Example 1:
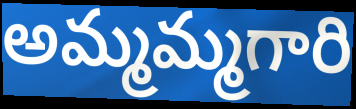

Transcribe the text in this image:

అమ్మమ్మగారి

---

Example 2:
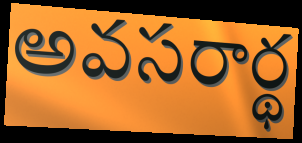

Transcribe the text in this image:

అవసరార్థ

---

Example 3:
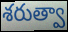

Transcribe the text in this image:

శరుత్వా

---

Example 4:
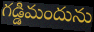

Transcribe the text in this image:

గడ్డిమందును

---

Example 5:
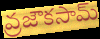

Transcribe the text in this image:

వ్రజౌకసామ్